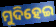
ମୁଦିହେଇ